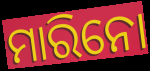
ମାରିନୋ